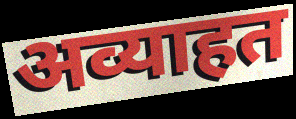
अव्याहत